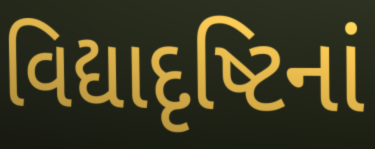
વિદ્યાદૃષ્ટિનાં